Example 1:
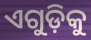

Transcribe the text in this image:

ଏଗୁଡ଼ିକୁ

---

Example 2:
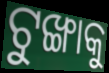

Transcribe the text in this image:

ଟୁଙ୍ଖାକୁ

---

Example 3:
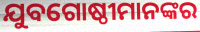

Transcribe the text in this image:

ଯୁବଗୋଷ୍ଠୀମାନଙ୍କର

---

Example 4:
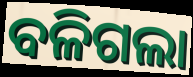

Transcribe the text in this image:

ବଳିଗଲା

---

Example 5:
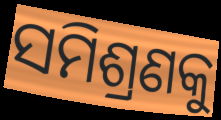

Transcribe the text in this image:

ସମିଶ୍ରଣକୁ